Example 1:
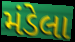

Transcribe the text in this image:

મંડેલા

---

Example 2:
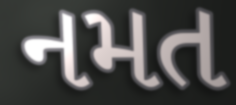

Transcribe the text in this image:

નમત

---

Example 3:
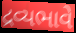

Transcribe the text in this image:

દ્રવ્યભાવે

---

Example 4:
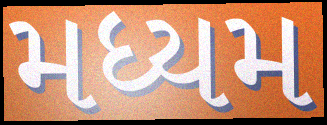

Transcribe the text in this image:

મધ્યમ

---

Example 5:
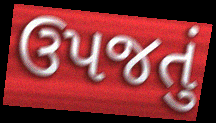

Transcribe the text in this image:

ઉપજતું